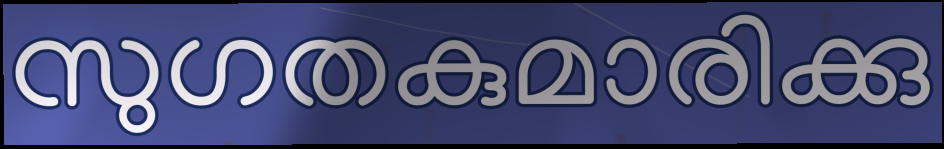
സുഗതകുമാരിക്കു